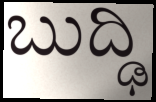
ಬುದ್ಢಿ